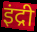
इंद्री